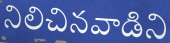
నిలిచినవాడిని